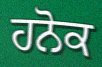
ਹਨੋਕ